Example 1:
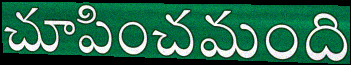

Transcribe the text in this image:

చూపించమంది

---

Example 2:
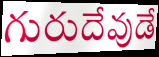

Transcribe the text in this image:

గురుదేవుడే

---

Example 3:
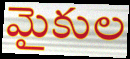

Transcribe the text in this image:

మైకుల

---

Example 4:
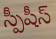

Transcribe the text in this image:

స్పీషీస్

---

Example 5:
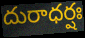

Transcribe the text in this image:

దురాధర్షః